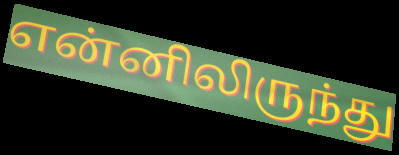
என்னிலிருந்து